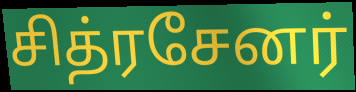
சித்ரசேனர்